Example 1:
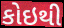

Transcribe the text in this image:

કોઇથી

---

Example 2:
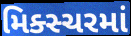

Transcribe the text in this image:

મિક્સ્ચરમાં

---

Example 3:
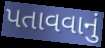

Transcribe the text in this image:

પતાવવાનું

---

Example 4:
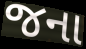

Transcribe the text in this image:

જના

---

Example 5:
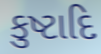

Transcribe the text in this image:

કુષ્ટાદિ